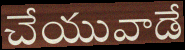
చేయువాడే